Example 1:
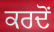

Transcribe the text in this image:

ਕਰਦੋਂ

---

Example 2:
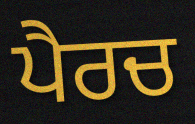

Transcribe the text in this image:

ਪੈਰਚ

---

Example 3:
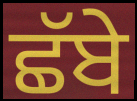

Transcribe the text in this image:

ਛੱਬੇ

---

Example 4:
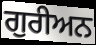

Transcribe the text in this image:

ਗੁਰੀਅਨ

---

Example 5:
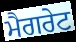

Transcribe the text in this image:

ਮੈਗਰੇਟ